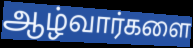
ஆழ்வார்களை